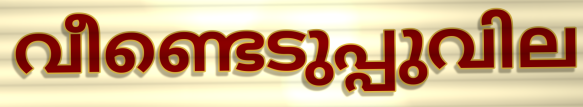
വീണ്ടെടുപ്പുവില